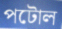
পটোল